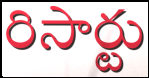
రిసార్టు